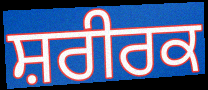
ਸ਼ਰੀਰਕ